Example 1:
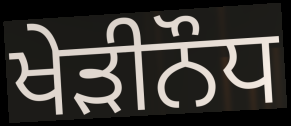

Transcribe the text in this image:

ਖੇੜੀਨੌਧ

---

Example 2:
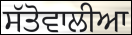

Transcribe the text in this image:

ਸੱਤੋਵਾਲੀਆ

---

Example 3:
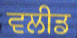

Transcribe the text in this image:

ਵਲੀਡ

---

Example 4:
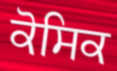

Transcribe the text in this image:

ਕੋਸਿਕ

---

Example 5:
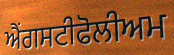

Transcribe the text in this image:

ਐਂਗਸਟੀਫੋਲੀਅਮ